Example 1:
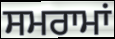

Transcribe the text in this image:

ਸਮਰਾਮਾਂ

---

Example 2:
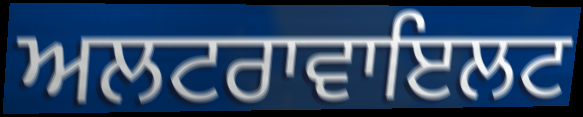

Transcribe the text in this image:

ਅਲਟਰਾਵਾਇਲਟ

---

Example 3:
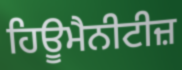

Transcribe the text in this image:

ਹਿਊਮੈਨੀਟੀਜ਼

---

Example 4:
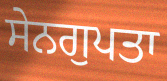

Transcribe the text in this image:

ਸੇਨਗੁਪਤਾ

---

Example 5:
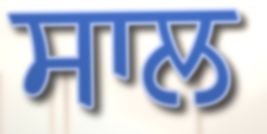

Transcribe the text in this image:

ਸਾਲ